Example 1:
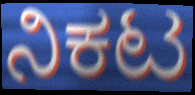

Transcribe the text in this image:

ನಿಕಟ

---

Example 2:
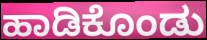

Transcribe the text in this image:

ಹಾಡಿಕೊಂಡು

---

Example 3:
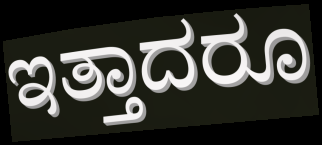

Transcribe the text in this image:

ಇತ್ತಾದರೂ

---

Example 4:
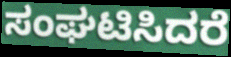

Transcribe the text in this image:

ಸಂಘಟಿಸಿದರೆ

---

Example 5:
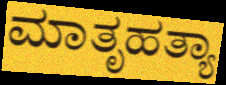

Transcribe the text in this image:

ಮಾತೃಹತ್ಯಾ